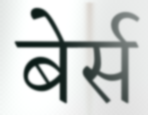
बेर्स